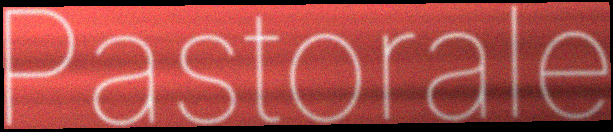
Pastorale